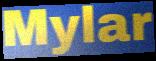
Mylar